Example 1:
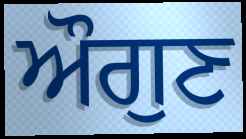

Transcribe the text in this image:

ਔਗੁਣ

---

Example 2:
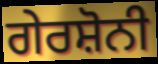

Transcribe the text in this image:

ਗੇਰਸ਼ੋਨੀ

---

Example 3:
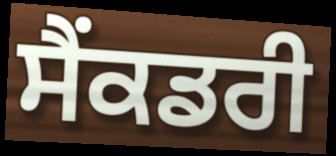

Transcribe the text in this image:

ਸੈਂਕਡਰੀ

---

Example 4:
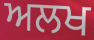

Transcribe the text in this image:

ਅਲਖ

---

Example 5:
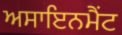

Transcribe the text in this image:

ਅਸਾਇਨਮੈਂਟ